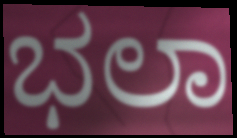
ಭಲಾ